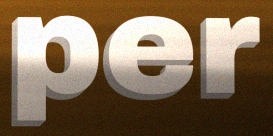
per